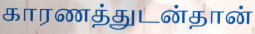
காரணத்துடன்தான்